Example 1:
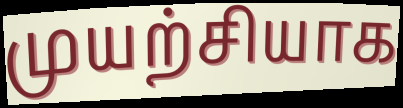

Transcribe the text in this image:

முயற்சியாக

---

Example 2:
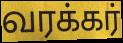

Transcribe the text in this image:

வரக்கர்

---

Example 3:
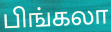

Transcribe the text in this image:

பிங்கலா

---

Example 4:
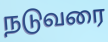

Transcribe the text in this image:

நடுவரை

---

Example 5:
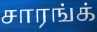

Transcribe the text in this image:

சாரங்க்